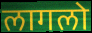
लागलो